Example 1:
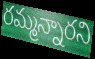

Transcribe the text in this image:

రమ్మన్నారని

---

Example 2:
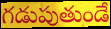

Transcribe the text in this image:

గడుపుతుండే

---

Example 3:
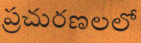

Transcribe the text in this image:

ప్రచురణలలో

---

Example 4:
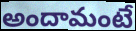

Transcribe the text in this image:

అందామంటే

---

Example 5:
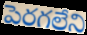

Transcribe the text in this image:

పెరగలేని